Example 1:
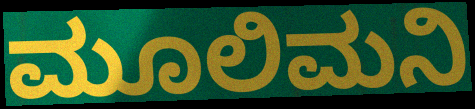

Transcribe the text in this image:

ಮೂಲಿಮನಿ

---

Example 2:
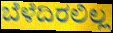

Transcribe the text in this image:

ಬೆಳೆದಿರಲಿಲ್ಲ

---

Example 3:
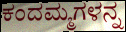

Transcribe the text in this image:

ಕಂದಮ್ಮಗಳನ್ನ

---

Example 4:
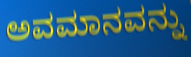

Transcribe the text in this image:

ಅವಮಾನವನ್ನು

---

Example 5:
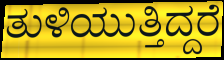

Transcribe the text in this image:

ತುಳಿಯುತ್ತಿದ್ದರೆ